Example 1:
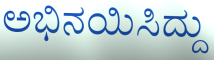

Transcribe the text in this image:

ಅಭಿನಯಿಸಿದ್ದು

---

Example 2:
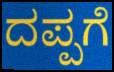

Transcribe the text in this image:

ದಪ್ಪಗೆ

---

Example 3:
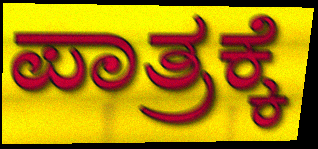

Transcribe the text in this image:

ಪಾತ್ರಕ್ಕೆ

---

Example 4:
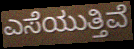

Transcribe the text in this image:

ಎಸೆಯುತ್ತಿವೆ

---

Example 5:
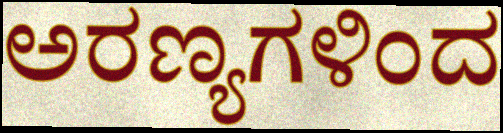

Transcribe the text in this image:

ಅರಣ್ಯಗಳಿಂದ